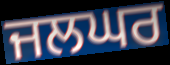
ਜਲਘਰ